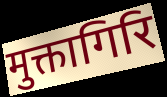
मुक्तागिरि